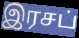
இரசப்